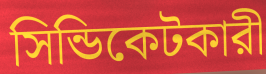
সিন্ডিকেটকারী